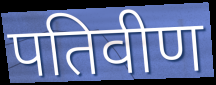
पतिवीण